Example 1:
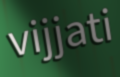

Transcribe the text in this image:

vijjati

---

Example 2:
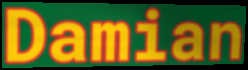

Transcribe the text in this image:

Damian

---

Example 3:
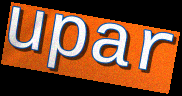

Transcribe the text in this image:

upar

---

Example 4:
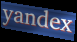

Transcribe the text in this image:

yandex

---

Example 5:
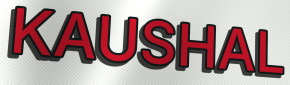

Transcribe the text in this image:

KAUSHAL